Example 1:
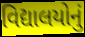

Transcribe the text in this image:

વિદ્યાલયોનું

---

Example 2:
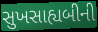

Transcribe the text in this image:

સુખસાહ્યબીની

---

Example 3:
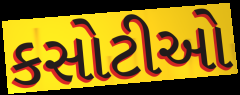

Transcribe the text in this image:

કસોટીઓ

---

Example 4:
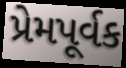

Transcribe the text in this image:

પ્રેમપૂર્વક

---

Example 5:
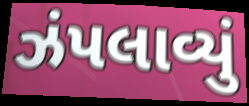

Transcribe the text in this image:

ઝંપલાવ્યું